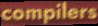
compilers